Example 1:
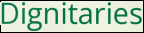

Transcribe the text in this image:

Dignitaries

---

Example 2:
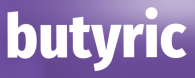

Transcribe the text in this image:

butyric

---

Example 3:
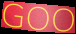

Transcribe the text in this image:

GOO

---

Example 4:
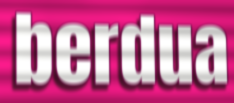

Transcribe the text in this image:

berdua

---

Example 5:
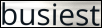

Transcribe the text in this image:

busiest